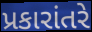
પ્રકારાંતરે